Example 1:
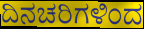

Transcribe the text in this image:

ದಿನಚರಿಗಳಿಂದ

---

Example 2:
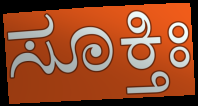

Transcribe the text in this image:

ಸೂಕ್ತಿಃ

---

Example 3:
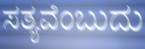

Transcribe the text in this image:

ಸತ್ಯವೆಂಬುದು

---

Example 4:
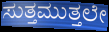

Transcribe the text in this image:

ಸುತ್ತಮುತ್ತಲೇ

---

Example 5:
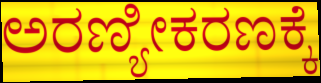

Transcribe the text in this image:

ಅರಣ್ಯೀಕರಣಕ್ಕೆ